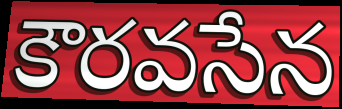
కౌరవసేన